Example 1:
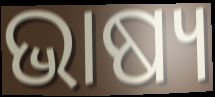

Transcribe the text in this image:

ଭାଷ୍ୟ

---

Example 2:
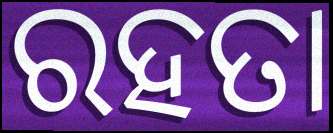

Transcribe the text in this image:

ରହତା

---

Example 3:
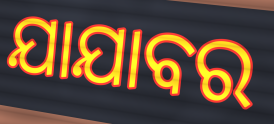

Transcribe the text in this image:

ଯାଯାବର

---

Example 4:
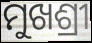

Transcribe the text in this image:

ମୁଖଶ୍ରୀ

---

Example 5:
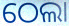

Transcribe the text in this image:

ଠେଲା